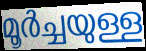
മൂർച്ചയുള്ള